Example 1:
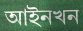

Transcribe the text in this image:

আইনখন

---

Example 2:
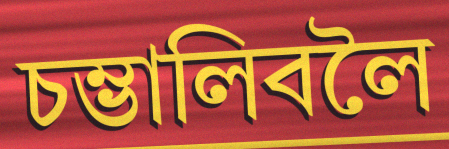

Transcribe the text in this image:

চম্ভালিবলৈ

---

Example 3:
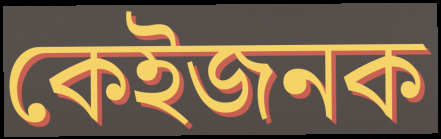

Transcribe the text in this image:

কেইজনক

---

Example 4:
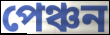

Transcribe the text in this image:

পেঞ্চন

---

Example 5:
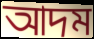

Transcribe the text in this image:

আদম